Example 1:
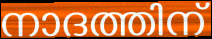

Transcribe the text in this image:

നാദത്തിന്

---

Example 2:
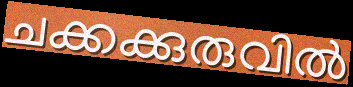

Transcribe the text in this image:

ചക്കക്കുരുവിൽ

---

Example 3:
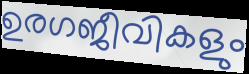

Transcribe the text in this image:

ഉരഗജീവികളും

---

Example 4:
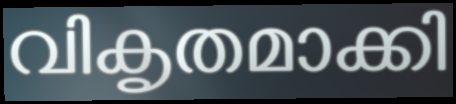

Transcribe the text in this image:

വികൃതമാക്കി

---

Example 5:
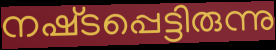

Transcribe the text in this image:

നഷ്‌ടപ്പെട്ടിരുന്നു